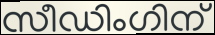
സീഡിംഗിന്